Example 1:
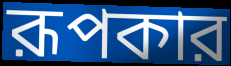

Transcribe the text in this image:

রূপকার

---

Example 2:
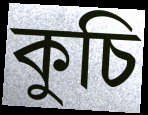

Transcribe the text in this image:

কুচি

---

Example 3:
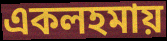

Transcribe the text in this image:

একলহমায়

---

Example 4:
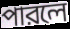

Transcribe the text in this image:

পারলে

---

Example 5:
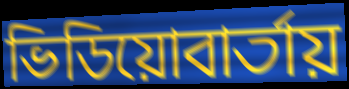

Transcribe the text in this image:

ভিডিয়োবার্তায়